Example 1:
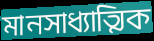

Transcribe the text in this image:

মানসাধ্যাত্মিক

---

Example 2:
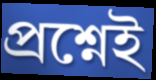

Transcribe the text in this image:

প্রশ্নেই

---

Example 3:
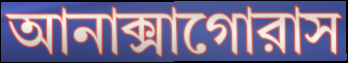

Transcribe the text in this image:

আনাক্সাগোরাস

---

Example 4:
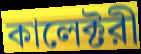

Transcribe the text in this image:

কালেক্টরী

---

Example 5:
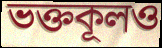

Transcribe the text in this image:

ভক্তকূলও